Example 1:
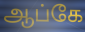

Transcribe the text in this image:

ஆப்கே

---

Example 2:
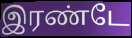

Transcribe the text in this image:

இரண்டே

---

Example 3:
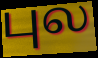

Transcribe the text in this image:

புல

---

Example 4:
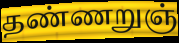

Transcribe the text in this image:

தண்ணறுஞ்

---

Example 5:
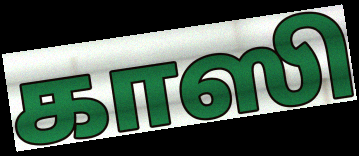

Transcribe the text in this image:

காஸி